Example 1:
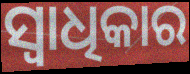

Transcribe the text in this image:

ସ୍ଵାଧିକାର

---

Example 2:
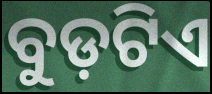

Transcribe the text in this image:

ବୁଡ଼ଟିଏ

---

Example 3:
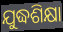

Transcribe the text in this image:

ଯୁଦ୍ଧଶିକ୍ଷା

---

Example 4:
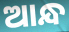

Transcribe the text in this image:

ଆନ୍ଧ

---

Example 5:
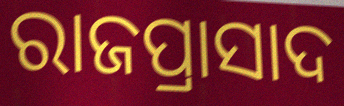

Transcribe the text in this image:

ରାଜପ୍ରାସାଦ